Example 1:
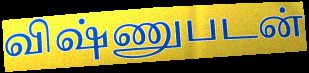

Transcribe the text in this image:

விஷ்ணுபடன்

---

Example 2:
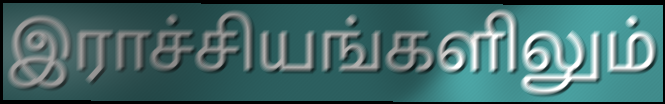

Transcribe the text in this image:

இராச்சியங்களிலும்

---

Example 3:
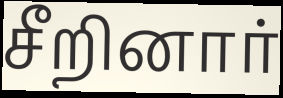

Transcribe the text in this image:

சீறினார்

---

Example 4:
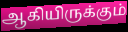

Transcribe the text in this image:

ஆகியிருக்கும்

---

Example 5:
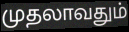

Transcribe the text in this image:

முதலாவதும்